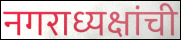
नगराध्यक्षांची